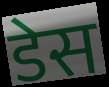
डेस